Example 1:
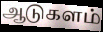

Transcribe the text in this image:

ஆடுகளம்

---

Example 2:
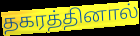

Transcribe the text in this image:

தகரத்தினால்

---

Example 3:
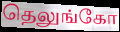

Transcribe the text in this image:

தெலுங்கோ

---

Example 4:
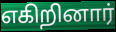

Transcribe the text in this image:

எகிறினார்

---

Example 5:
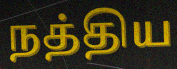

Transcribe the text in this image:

நத்திய